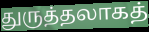
துருத்தலாகத்